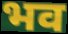
भव